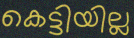
കെട്ടിയില്ല